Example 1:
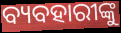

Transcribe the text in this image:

ବ୍ୟବହାରୀଙ୍କୁ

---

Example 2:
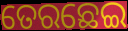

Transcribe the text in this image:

ତେରଛେଇ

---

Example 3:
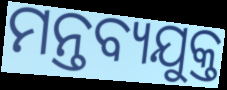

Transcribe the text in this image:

ମନ୍ତବ୍ୟଯୁକ୍ତ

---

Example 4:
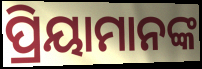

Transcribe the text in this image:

ପ୍ରିୟାମାନଙ୍କ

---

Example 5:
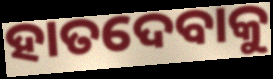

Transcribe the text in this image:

ହାତଦେବାକୁ